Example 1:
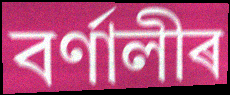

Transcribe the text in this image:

বৰ্ণালীৰ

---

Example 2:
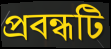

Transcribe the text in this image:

প্ৰবন্ধটি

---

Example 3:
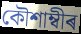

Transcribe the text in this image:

কৌশাম্বীৰ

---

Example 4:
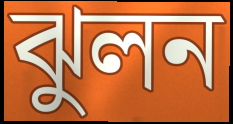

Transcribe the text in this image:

ঝুলন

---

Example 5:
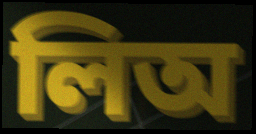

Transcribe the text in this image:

লিঅ